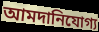
আমদানিযোগ্য